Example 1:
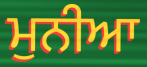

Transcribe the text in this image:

ਮੁਨੀਆ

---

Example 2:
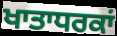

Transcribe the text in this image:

ਖਾਤਾਧਰਕਾਂ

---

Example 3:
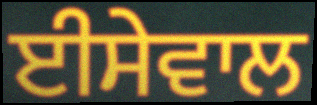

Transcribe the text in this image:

ਈਸੇਵਾਲ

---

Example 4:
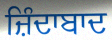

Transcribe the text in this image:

ਜ਼ਿੰਦਾਬਾਦ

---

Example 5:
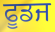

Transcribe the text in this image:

ਫੂਡਜ